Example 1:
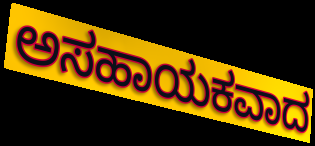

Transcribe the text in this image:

ಅಸಹಾಯಕವಾದ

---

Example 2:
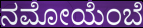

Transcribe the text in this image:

ನಮೋಯೆಂಬೆ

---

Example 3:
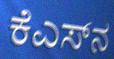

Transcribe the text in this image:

ಕೆಎಸ್‌ನ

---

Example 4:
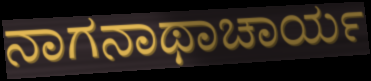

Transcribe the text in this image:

ನಾಗನಾಥಾಚಾರ್ಯ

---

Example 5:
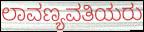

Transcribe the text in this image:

ಲಾವಣ್ಯವತಿಯರು